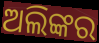
ଅଲିଙ୍କର